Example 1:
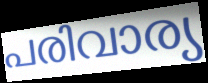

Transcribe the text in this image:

പരിവാര്യ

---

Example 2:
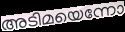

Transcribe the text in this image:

അടിമയെന്നോ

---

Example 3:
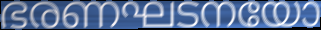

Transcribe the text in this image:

ഭരണഘടനയോ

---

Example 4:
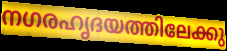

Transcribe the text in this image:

നഗരഹൃദയത്തിലേക്കു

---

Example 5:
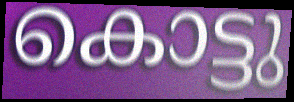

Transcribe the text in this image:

കൊട്ടു